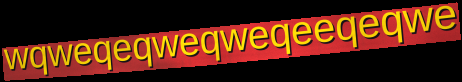
wqweqeqweqweqeeqeqwe